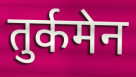
तुर्कमेन